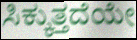
ಸಿಕ್ಕುತ್ತದೆಯೇ